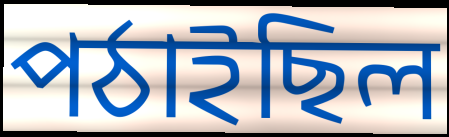
পঠাইছিল